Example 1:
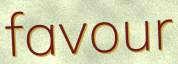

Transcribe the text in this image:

favour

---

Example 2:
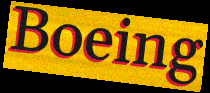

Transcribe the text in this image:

Boeing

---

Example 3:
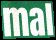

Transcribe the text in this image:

mal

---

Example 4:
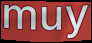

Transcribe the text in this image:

muy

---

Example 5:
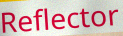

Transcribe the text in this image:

Reflector